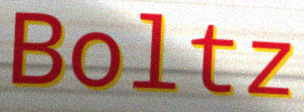
Boltz